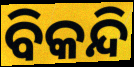
ବିକନ୍ଦି